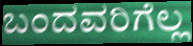
ಬಂದವರಿಗೆಲ್ಲ